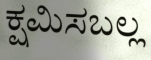
ಕ್ಷಮಿಸಬಲ್ಲ